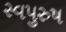
સ્વપુરુષ